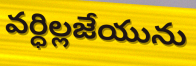
వర్ధిల్లజేయును